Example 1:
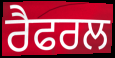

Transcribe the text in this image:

ਰੈਫਰਲ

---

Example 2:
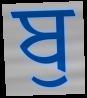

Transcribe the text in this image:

ਬੁ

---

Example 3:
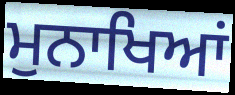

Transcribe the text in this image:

ਮੁਨਾਖਿਆਂ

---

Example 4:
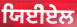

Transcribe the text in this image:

ਯਿਈੇਏਲ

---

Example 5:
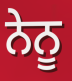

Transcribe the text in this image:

ਨੇਨੂ